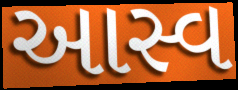
આસ્વ